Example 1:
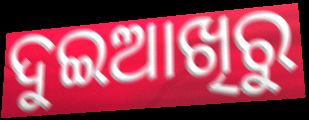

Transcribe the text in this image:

ଦୁଇଆଖିରୁ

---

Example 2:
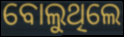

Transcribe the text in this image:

ବୋଲୁଥିଲେ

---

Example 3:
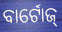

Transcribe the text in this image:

ବାର୍ଟୋଜ୍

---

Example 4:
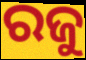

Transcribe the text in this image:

ରଜୁ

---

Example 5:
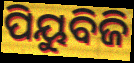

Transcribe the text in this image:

ପିୟୁବିଜି